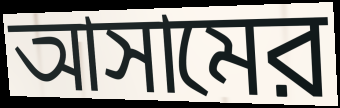
আসামের